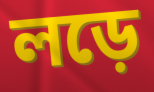
লড়ে